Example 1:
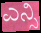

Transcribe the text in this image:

ಎನ್ಸಿ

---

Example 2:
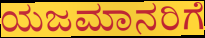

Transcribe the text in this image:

ಯಜಮಾನರಿಗೆ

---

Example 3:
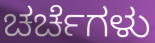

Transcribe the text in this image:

ಚರ್ಚೆಗಳು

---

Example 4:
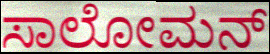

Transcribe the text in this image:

ಸಾಲೋಮನ್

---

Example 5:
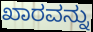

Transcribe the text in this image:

ಖಾರವನ್ನು